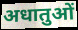
अधातुओं